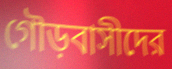
গৌড়বাসীদের